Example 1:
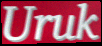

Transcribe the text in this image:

Uruk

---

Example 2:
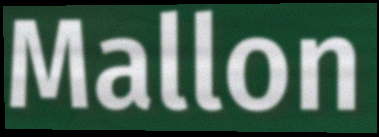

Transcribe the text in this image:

Mallon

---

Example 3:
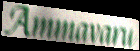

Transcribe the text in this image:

Ammavaru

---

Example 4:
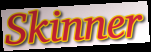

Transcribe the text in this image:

Skinner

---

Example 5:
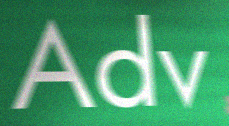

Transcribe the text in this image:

Adv